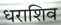
धराशिव